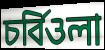
চর্বিওলা